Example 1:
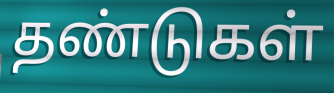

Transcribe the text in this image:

தண்டுகள்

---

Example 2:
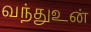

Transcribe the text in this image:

வந்துஉன்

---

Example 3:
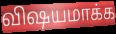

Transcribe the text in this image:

விஷயமாக்க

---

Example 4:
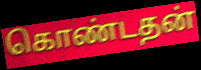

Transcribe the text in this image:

கொண்டதன்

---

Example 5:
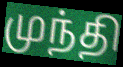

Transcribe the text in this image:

முந்தி